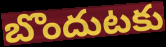
బొందుటకు